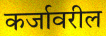
कर्जावरील